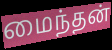
மைந்தன்